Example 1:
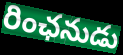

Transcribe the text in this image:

రింఛనుడు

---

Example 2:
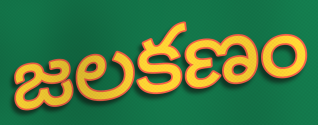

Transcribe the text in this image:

జలకణం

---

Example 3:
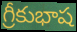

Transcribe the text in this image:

గ్రీకుభాష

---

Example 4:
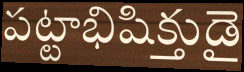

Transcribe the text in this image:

పట్టాభిషిక్తుడై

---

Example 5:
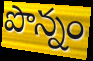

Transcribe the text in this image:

పొన్నం